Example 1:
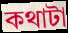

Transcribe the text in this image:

কথাটা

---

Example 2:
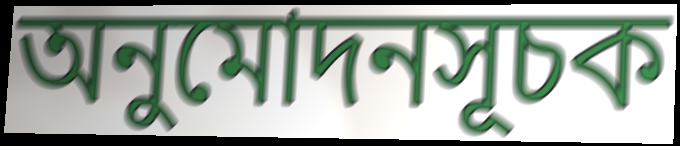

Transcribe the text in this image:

অনুমোদনসূচক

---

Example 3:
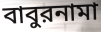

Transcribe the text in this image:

বাবুরনামা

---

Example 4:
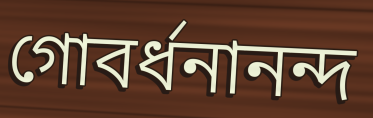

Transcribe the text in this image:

গোবর্ধনানন্দ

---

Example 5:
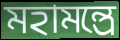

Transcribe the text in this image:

মহামন্ত্রে